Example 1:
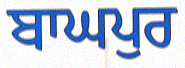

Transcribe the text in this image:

ਬਾਘਪੁਰ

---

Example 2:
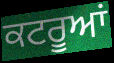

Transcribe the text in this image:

ਕਟਰੂਆਂ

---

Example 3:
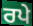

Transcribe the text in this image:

ਰਪੇ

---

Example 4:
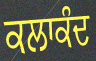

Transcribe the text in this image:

ਕਲਾਕੰਦ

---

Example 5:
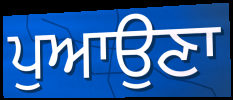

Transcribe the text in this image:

ਪੁਆਉਣਾ